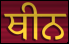
ਥੀਨ